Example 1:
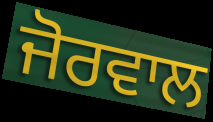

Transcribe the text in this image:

ਜੋਰਵਾਲ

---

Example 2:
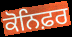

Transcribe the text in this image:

ਕੋਨਿਫ਼ਰ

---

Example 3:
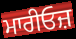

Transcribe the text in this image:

ਮਾਰੀਓਜ਼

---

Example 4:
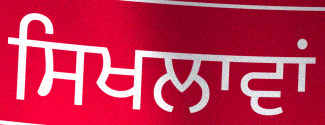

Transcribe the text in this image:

ਸਿਖਲਾਵਾਂ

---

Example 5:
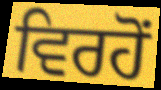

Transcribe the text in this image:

ਵਿਰਹੋਂ